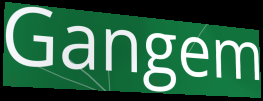
Gangem